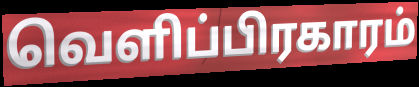
வெளிப்பிரகாரம்